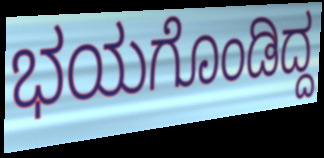
ಭಯಗೊಂಡಿದ್ದ